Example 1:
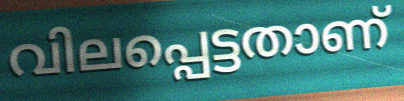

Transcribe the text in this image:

വിലപ്പെട്ടതാണ്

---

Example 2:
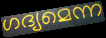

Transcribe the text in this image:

ഗദ്യമെന്ന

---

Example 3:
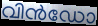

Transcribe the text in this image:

വിൻഡോ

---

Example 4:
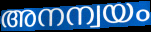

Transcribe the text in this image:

അനന്വയം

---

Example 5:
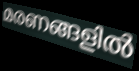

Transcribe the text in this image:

മരണങ്ങളിൽ